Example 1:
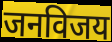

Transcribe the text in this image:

जनविजय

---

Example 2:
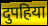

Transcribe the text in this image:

दुपहिया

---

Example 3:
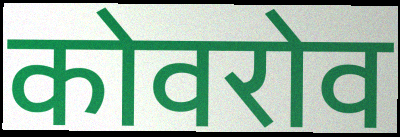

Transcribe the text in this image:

कोवरोव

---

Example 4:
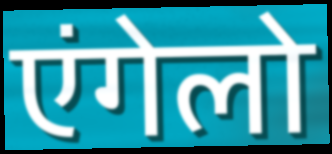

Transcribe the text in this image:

एंगेलो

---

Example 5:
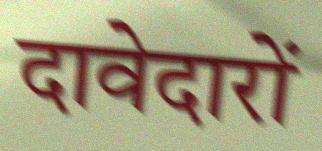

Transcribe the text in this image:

दावेदारों